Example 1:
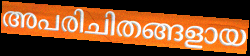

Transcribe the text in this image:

അപരിചിതങ്ങളായ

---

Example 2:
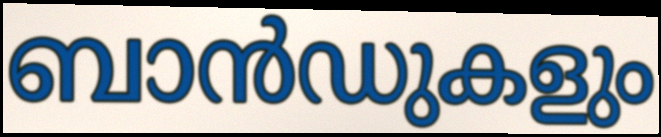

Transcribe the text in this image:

ബാൻഡുകളും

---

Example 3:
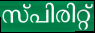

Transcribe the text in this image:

സ്പിരിറ്റ്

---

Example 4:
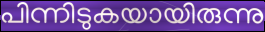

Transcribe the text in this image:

പിന്നിടുകയായിരുന്നു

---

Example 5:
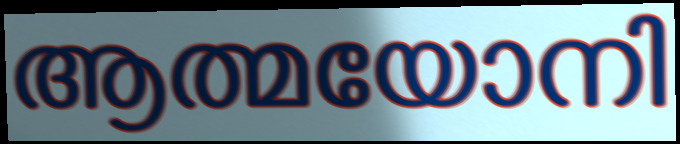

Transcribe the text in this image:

ആത്മയോനി